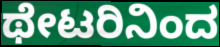
ಥೇಟರಿನಿಂದ